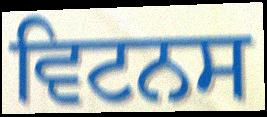
ਵਿਟਨਸ